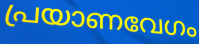
പ്രയാണവേഗം